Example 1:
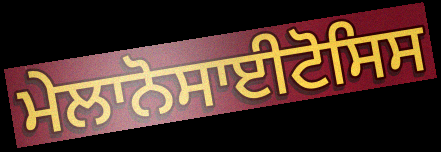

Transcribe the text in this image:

ਮੇਲਾਨੋਸਾਈਟੋਸਿਸ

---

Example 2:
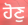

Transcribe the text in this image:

ਹੋਣੁ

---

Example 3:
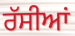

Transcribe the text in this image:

ਰੱਸੀਆਂ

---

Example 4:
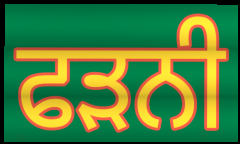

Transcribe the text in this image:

ਫੜਨੀ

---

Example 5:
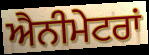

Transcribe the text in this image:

ਐਨੀਮੇਟਰਾਂ